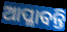
ଆପ୍ଳାବନ୍ତି